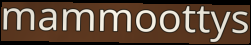
mammoottys